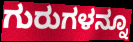
ಗುರುಗಳನ್ನೂ